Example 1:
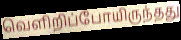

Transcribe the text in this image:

வெளிறிப்போயிருந்தது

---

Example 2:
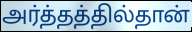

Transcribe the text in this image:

அர்த்தத்தில்தான்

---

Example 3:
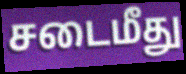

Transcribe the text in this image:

சடைமீது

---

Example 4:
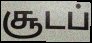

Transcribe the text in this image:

சூடப்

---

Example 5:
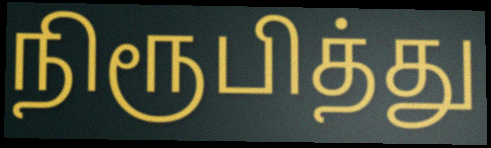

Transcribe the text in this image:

நிரூபித்து